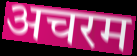
अचरम